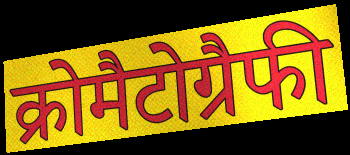
क्रोमैटोग्रैफी